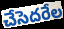
చేసెదరేల